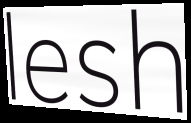
lesh